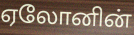
ஏலோனின்